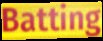
Batting